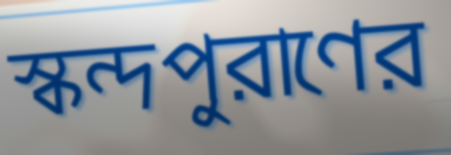
স্কন্দপুরাণের